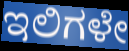
ಇಲಿಗಳೇ